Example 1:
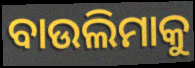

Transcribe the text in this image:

ବାଉଲିମାକୁ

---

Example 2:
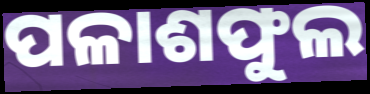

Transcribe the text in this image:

ପଳାଶଫୁଲ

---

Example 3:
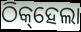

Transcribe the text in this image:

ଠିକ୍‌ହେଲା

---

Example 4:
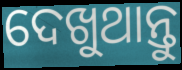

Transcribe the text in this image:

ଦେଖୁଥାନ୍ତୁ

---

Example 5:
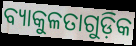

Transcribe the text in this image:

ବ୍ୟାକୁଳତାଗୁଡ଼ିକ